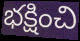
భక్షించి